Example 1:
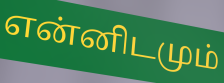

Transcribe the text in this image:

என்னிடமும்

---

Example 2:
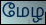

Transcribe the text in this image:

மேழ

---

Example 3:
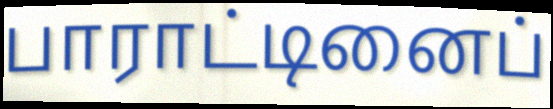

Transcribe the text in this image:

பாராட்டினைப்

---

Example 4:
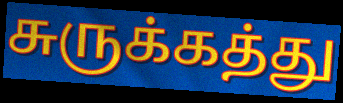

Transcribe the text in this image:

சுருக்கத்து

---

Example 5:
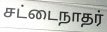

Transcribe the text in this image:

சட்டைநாதர்